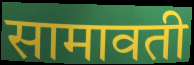
सामावती